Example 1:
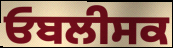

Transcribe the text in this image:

ਓਬਲੀਸਕ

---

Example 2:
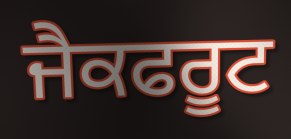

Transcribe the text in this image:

ਜੈਕਫਰੂਟ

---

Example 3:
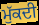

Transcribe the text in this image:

ਮੁੱਕਦੀ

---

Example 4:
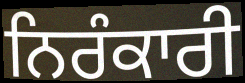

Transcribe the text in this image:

ਨਿਰੰਕਾਰੀ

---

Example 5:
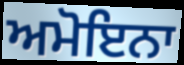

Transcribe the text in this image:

ਅਮੋਇਨਾ